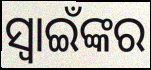
ସ୍ୱାଇଁଙ୍କର